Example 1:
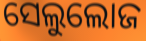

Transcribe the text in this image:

ସେଲୁଲୋଜ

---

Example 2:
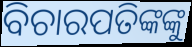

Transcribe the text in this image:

ବିଚାରପତିଙ୍କଙ୍କୁ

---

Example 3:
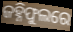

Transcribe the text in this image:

ଜହ୍ନିଫୁଲରେ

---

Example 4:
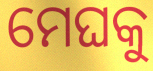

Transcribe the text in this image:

ମେଘକୁ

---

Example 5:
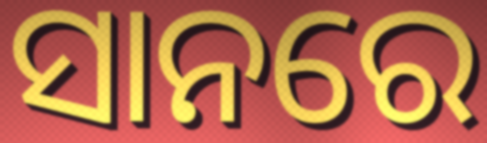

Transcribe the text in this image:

ସାନରେ